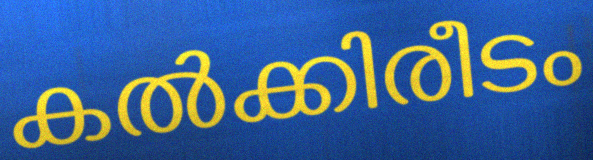
കൽക്കിരീടം